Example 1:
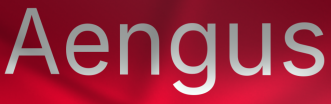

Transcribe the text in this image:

Aengus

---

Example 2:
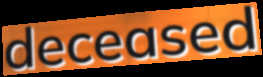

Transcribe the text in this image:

deceased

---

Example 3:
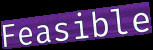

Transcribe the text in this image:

Feasible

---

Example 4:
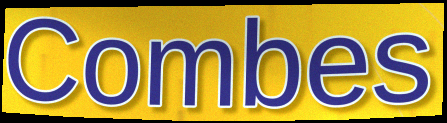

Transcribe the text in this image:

Combes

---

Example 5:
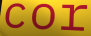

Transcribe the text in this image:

cor